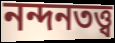
নন্দনতত্ত্ব